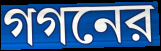
গগনের